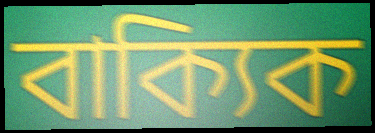
বাক্যিক